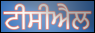
ਟੀਸੀਐਲ